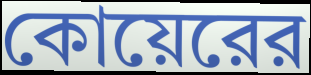
কোয়েরের